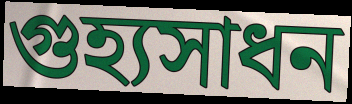
গুহ্যসাধন